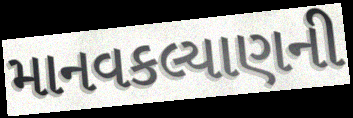
માનવકલ્યાણની